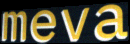
meva